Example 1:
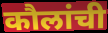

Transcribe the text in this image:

कौलांची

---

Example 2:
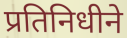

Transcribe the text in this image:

प्रतिनिधीने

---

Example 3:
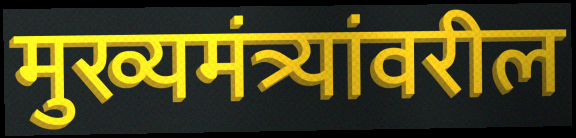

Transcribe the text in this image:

मुख्यमंत्र्यांवरील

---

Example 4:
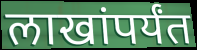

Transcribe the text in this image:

लाखांपर्यंत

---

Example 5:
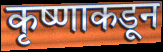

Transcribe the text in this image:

कृष्णाकडून